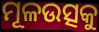
ମୂଳଉତ୍ସକୁ